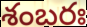
శంబరః